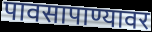
पावसापाण्यावर